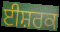
ਈਸ਼ਰਕ